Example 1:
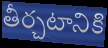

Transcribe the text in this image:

తీర్చటానికి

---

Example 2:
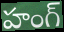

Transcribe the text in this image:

హంగ్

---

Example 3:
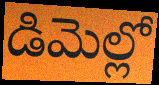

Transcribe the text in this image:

డిమెల్లో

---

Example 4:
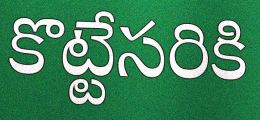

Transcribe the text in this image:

కొట్టేసరికి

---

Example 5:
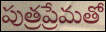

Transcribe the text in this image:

పుత్రప్రేమతో